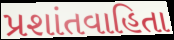
પ્રશાંતવાહિતા